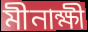
মীনাক্ষী